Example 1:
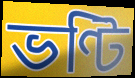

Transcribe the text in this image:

ভণ্টি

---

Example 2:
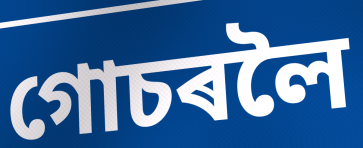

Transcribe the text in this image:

গোচৰলৈ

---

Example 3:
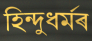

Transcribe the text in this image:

হিন্দুধৰ্মৰ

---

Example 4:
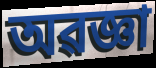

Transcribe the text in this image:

অৱজ্ঞা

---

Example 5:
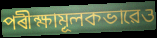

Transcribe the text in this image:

পৰীক্ষামূলকভাৱেও